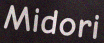
Midori